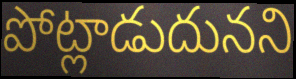
పోట్లాడుదునని